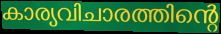
കാര്യവിചാരത്തിന്റെ